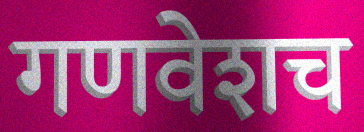
गणवेशच